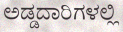
ಅಡ್ಡದಾರಿಗಳಲ್ಲಿ